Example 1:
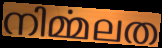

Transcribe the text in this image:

നിൎമ്മലത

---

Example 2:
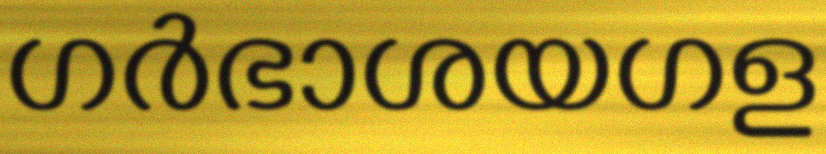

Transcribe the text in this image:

ഗർഭാശയഗള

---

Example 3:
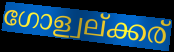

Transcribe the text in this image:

ഗോള്വല്ക്കര്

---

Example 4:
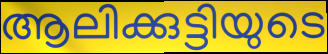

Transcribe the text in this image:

ആലിക്കുട്ടിയുടെ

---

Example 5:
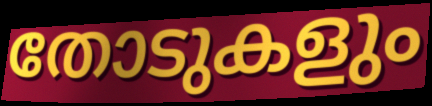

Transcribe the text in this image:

തോടുകളും